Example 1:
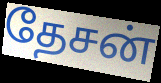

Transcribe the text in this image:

தேசன்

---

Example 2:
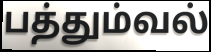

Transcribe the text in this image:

பத்தும்வல்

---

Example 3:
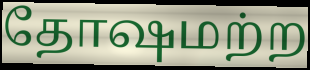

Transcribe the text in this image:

தோஷமற்ற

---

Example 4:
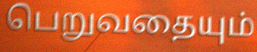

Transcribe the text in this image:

பெறுவதையும்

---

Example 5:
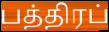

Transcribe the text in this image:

பத்திரப்